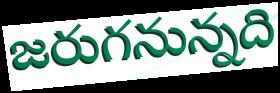
జరుగనున్నది